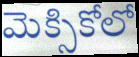
మెక్సికోలో